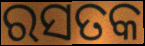
ରସତକ